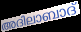
അദിലാബാദ്